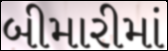
બીમારીમાં